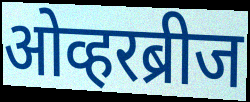
ओव्हरब्रीज